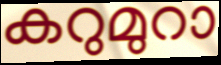
കറുമുറാ